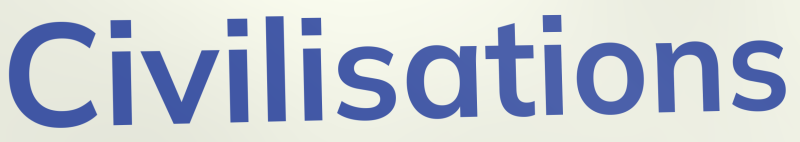
Civilisations